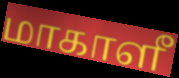
மாகாளீ